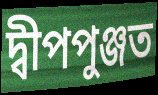
দ্বীপপুঞ্জত